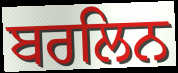
ਬਰਲਿਨ